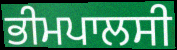
ਭੀਮਪਾਲਸੀ